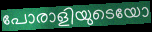
പോരാളിയുടെയോ